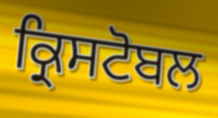
ਕ੍ਰਿਸਟੋਬਲ